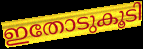
ഇതോടുകൂടി